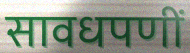
सावधपणीं